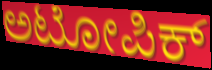
ಅಟೋಪಿಕ್